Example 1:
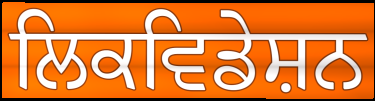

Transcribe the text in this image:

ਲਿਕਵਿਡੇਸ਼ਨ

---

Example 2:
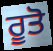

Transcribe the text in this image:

ਰੂਤੋ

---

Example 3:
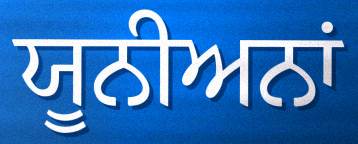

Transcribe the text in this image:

ਯੂਨੀਅਨਾਂ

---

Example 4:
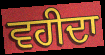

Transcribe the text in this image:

ਵਹੀਦਾ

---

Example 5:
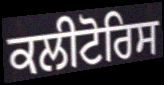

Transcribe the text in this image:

ਕਲੀਟੋਰਿਸ